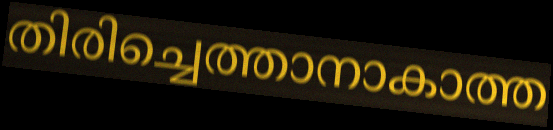
തിരിച്ചെത്താനാകാത്ത